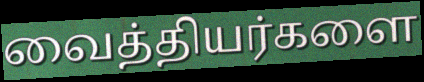
வைத்தியர்களை